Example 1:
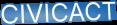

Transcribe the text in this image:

CIVICACT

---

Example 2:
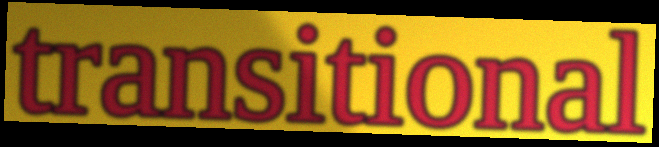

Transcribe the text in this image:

transitional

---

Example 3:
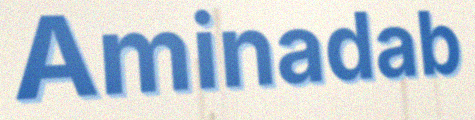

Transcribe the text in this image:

Aminadab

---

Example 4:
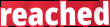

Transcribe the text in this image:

reached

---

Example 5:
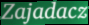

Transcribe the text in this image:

Zajadacz